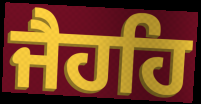
ਜੈਹਹਿ